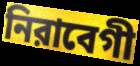
নিরাবেগী